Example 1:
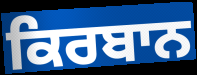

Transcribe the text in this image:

ਕਿਰਬਾਨ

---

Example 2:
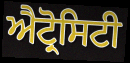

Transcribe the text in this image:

ਐਟ੍ਰੋਸਿਟੀ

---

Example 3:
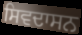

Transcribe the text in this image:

ਸਿਵਦਾਸਨ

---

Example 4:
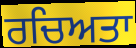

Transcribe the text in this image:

ਰਚਿਅਤਾ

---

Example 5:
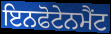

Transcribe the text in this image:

ਇਨਫੋਟੇਨਮੈਂਟ